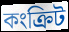
কংক্রিট